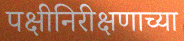
पक्षीनिरीक्षणाच्या